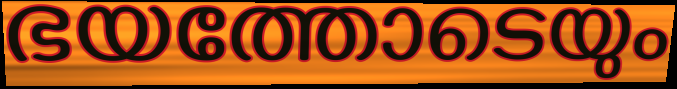
ഭയത്തോടെയും